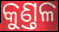
କୁଣ୍ତଳ